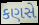
કણસે